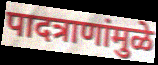
पादत्राणांमुळे